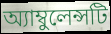
অ্যাম্বুলেন্সটি